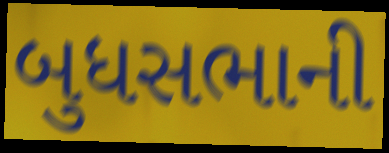
બુધસભાની